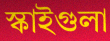
স্কাইগুলা